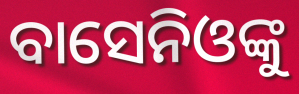
ବାସେନିଓଙ୍କୁ